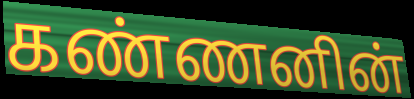
கண்ணனின்